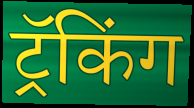
ट्रॅकिंग